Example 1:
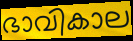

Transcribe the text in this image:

ഭാവികാല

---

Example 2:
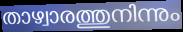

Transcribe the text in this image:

താഴ്വാരത്തുനിന്നും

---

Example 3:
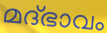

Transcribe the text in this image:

മദ്ഭാവം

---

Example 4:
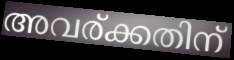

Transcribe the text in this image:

അവര്ക്കതിന്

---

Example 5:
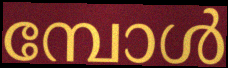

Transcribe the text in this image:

മ്പോൾ